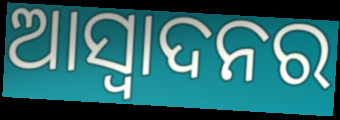
ଆସ୍ବାଦନର